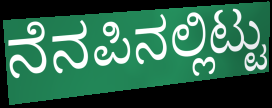
ನೆನಪಿನಲ್ಲಿಟ್ಟು